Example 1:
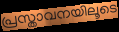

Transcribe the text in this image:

പ്രസ്താവനയിലൂടെ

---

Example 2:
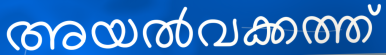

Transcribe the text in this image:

അയൽവക്കത്ത്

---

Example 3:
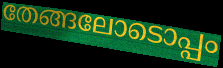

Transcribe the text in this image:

തേങ്ങലോടൊപ്പം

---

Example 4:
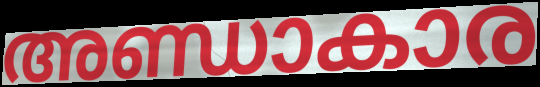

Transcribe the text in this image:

അണ്ഡാകാര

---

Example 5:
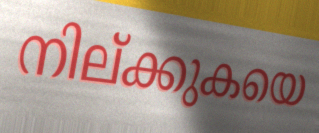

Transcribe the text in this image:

നില്ക്കുകയെ